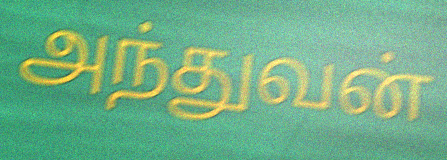
அந்துவன்